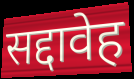
सद्दावेह